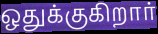
ஒதுக்குகிறார்